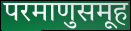
परमाणुसमूह